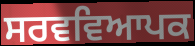
ਸਰਵਵਿਆਪਕ